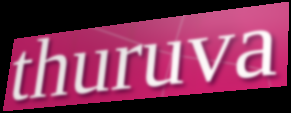
thuruva